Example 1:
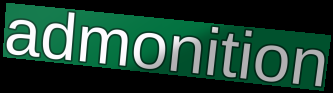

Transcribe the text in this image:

admonition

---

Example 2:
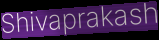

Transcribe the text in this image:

Shivaprakash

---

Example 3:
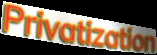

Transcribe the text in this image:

Privatization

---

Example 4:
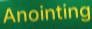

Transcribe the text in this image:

Anointing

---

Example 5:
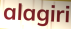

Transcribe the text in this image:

alagiri